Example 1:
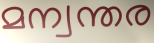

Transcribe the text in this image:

മന്വന്തര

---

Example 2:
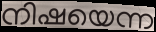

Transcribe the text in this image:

നിഷയെന്ന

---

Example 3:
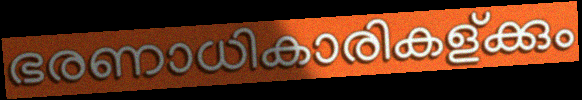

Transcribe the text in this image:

ഭരണാധികാരികള്ക്കും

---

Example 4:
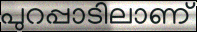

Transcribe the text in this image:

പുറപ്പാടിലാണ്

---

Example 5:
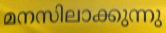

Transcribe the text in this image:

മനസിലാക്കുന്നു